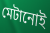
মেটানোই